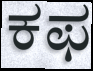
ಕಫ